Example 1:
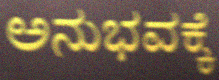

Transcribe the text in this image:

ಅನುಭವಕ್ಕೆ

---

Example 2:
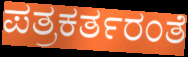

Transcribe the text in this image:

ಪತ್ರಕರ್ತರಂತೆ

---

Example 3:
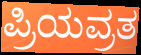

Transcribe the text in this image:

ಪ್ರಿಯವ್ರತ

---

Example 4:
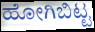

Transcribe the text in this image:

ಹೋಗಿಬಿಟ್ಟ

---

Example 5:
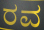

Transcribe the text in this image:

ರವ